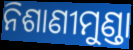
ନିଶାଣୀମୁଣ୍ଡା